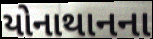
યોનાથાનના